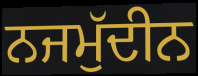
ਨਜਮੁੱਦੀਨ